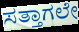
ಸತ್ತಾಗಲೇ